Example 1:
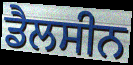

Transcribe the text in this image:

ਡੈਲਸੀਨ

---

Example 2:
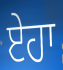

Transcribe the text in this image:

ਏਹਾ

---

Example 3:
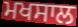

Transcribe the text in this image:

ਮਖਸਾਲ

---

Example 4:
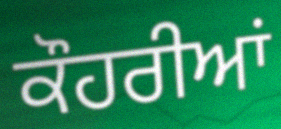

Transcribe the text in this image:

ਕੌਹਰੀਆਂ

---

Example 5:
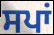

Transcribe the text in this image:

ਸਪਾਂ